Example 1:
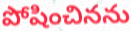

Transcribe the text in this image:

పోషించినను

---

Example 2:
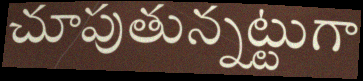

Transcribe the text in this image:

చూపుతున్నట్టుగా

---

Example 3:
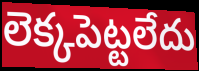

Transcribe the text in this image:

లెక్కపెట్టలేదు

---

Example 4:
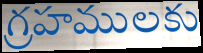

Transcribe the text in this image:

గ్రహములకు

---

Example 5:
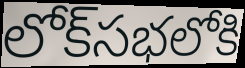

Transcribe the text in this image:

లోక్‌సభలోకి